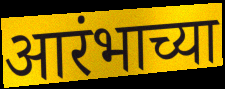
आरंभाच्या